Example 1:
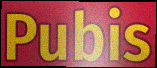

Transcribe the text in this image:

Pubis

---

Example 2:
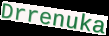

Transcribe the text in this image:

Drrenuka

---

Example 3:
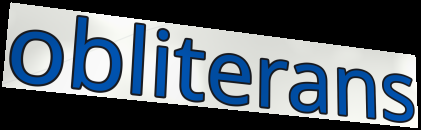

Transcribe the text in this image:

obliterans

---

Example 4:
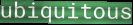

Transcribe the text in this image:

ubiquitous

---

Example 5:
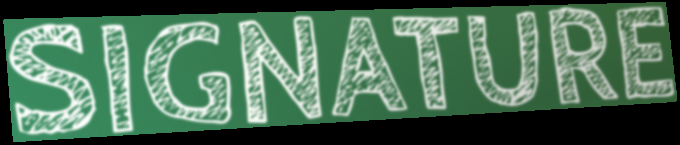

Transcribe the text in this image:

SIGNATURE